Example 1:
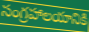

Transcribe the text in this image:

సంగ్రహాలయానికి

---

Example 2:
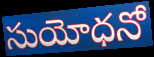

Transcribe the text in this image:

సుయోధనో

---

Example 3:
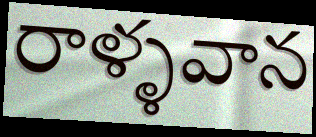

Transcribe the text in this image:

రాళ్ళవాన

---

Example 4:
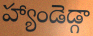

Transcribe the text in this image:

హ్యాండెడ్గా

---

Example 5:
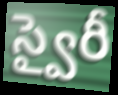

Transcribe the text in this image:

స్వైరీ